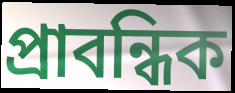
প্রাবন্ধিক